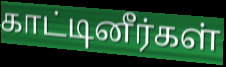
காட்டினீர்கள்